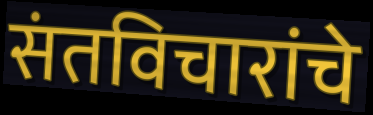
संतविचारांचे